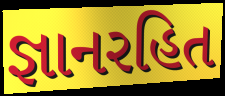
જ્ઞાનરહિત